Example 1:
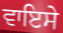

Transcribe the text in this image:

ਵਾਇਸੇ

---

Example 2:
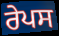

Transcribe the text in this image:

ਰੇਪਸ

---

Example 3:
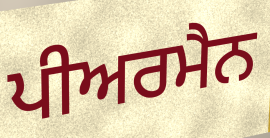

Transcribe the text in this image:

ਪੀਅਰਮੈਨ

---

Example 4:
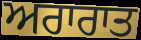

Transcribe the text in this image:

ਅਰਾਰਾਤ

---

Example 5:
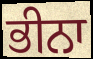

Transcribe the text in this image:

ਭੀਨਾ